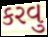
કરવુ